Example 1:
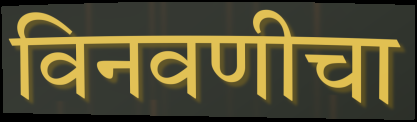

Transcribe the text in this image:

विनवणीचा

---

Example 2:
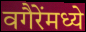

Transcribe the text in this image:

वगैरेंमध्ये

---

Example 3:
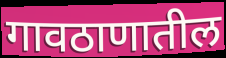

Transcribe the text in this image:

गावठाणातील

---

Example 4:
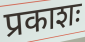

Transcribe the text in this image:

प्रकाशः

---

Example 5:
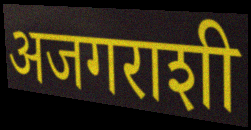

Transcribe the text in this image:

अजगराशी